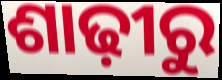
ଶାଢ଼ୀରୁ